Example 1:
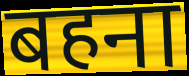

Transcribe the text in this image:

बहना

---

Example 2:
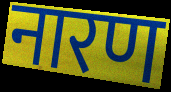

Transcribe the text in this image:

नारण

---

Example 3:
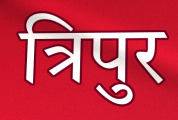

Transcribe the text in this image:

त्रिपुर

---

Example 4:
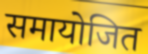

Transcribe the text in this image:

समायोजित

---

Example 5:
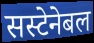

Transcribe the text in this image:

सस्टेनेबल